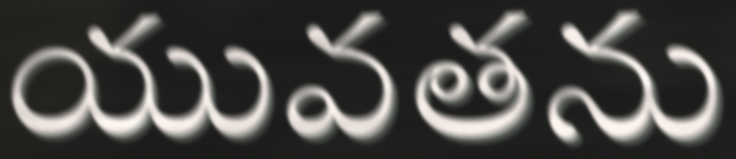
యువతను